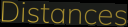
Distances